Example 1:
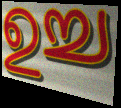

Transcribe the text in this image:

ഉച്ച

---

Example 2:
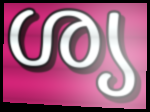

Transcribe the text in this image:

ശ്യ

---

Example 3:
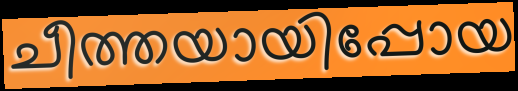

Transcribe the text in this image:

ചീത്തയായിപ്പോയ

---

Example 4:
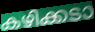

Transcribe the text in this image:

കഴിക്കടാ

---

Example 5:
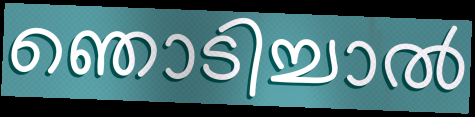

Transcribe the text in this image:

ഞൊടിച്ചാൽ